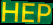
HEP